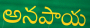
అనపాయ